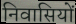
निवासियों